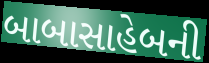
બાબાસાહેબની